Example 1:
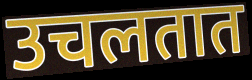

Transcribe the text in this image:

उचलतात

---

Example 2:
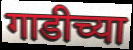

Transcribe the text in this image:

गाडीच्या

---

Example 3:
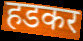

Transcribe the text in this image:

हडकर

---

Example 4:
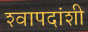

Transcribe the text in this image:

श्वापदांशी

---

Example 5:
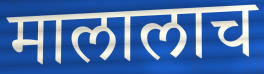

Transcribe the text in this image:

मालालाच